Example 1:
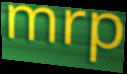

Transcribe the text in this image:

mrp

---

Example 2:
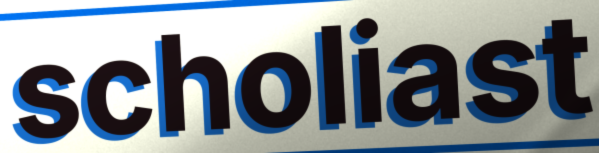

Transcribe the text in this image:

scholiast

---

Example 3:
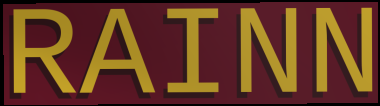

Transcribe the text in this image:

RAINN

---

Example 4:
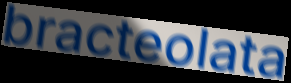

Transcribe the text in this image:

bracteolata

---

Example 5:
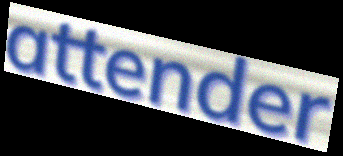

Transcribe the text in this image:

attender